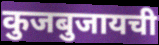
कुजबुजायची